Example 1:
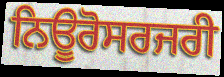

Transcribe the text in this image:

ਨਿਊਰੋਸਰਜਰੀ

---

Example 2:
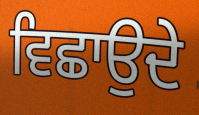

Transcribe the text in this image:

ਵਿਛਾਉਦੇ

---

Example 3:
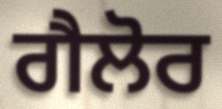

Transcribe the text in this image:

ਗੈਲੋਰ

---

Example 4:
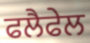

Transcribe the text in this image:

ਫਲੈਫੇਲ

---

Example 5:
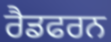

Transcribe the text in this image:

ਰੈਡਫਰਨ